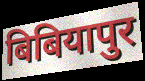
बिबियापुर